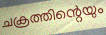
ചക്രത്തിന്റെയും